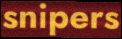
snipers